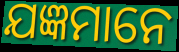
ଯଜ୍ଞମାନେ